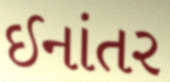
ઈનાંતર